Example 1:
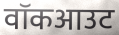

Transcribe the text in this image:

वॉकआउट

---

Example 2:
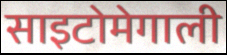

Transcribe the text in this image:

साइटोमेगाली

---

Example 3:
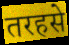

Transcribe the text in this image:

तरहसे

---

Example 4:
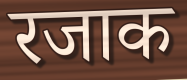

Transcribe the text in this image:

रजाक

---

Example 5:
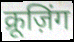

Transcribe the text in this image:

क्रूज़िंग